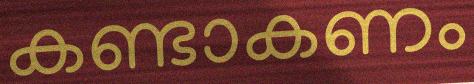
കണ്ടാകണം